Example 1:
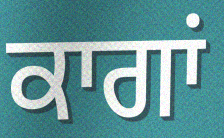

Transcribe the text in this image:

ਕਾਗਾਂ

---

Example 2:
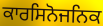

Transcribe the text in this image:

ਕਾਰਸਿਨੋਜਨਿਕ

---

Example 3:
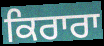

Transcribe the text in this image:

ਕਿਰਾਰਾ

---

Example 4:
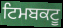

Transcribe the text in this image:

ਟਿਮਬਕਟੂ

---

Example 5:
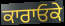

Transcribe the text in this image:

ਕਾਰਾਓਕੇ